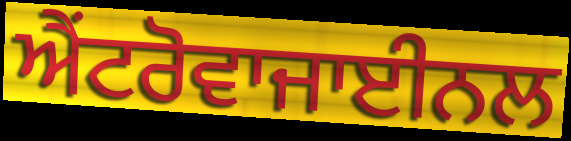
ਐਂਟਰੋਵਾਜਾਈਨਲ